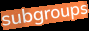
subgroups